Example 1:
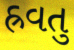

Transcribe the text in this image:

હ્રવતુ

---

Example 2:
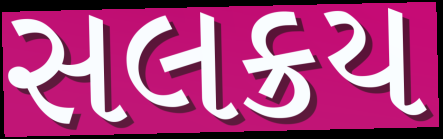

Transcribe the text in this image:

સલક્રય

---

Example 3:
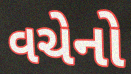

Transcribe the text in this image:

વચેનો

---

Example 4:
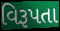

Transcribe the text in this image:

વિરૂપતા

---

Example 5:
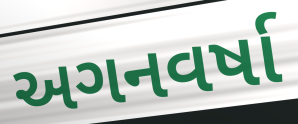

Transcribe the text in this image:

અગનવર્ષા